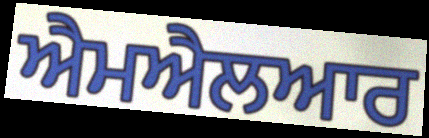
ਐਮਐਲਆਰ